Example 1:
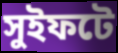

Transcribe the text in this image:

সুইফটে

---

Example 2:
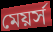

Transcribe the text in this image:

মেয়র্স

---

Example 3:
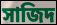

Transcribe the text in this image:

সাজিদ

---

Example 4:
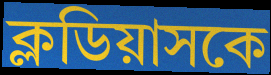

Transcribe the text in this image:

ক্লডিয়াসকে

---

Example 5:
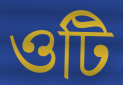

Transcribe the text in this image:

ওটি